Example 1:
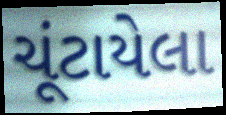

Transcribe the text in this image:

ચૂંટાયેલા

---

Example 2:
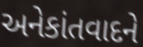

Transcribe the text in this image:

અનેકાંતવાદને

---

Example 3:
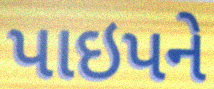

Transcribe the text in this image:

પાઇપને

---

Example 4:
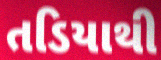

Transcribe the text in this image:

તડિયાથી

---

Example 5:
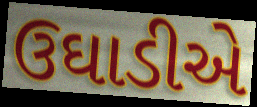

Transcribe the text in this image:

ઉઘાડીએ